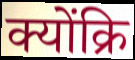
क्योंक्रि